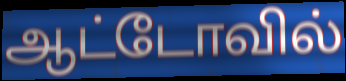
ஆட்டோவில்